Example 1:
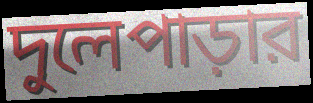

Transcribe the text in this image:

দুলেপাড়ার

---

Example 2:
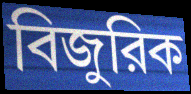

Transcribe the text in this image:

বিজুরিক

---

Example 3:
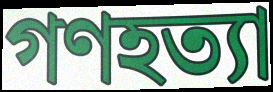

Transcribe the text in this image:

গণহত্যা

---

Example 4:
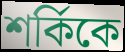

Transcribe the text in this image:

শর্কিকে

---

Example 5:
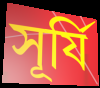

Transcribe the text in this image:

সূর্যি